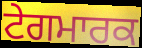
ਟੇਗਮਾਰਕ